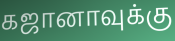
கஜானாவுக்கு